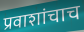
प्रवाशांचाच